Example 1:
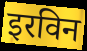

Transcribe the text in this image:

इरविन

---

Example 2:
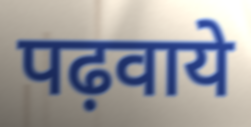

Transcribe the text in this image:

पढ़वाये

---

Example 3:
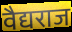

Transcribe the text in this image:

वैद्यराज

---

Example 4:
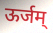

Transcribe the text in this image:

ऊर्जम्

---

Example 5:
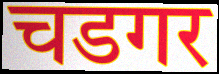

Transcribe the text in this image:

चडगर